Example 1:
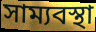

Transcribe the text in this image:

সাম্যবস্থা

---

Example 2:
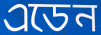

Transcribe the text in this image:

এডেন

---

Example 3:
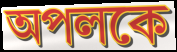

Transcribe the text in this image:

অপলকে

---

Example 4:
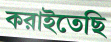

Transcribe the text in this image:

করাইতেছি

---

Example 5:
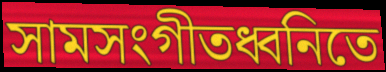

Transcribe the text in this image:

সামসংগীতধ্বনিতে